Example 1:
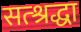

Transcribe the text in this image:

सत्श्रद्धा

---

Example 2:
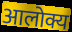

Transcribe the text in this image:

आलोक्य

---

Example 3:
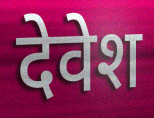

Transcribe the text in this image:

देवेश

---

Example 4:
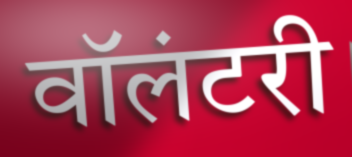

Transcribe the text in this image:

वॉलंटरी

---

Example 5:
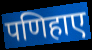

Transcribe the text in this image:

पणिहाए